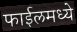
फाईलमध्ये